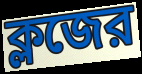
ক্লজের